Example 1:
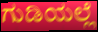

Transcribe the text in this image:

ಗುಡಿಯಲ್ಲೆ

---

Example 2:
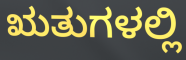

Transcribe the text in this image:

ಋತುಗಳಲ್ಲಿ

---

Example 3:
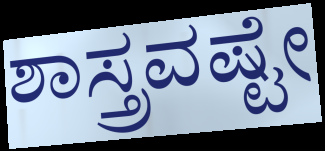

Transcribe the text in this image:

ಶಾಸ್ತ್ರವಷ್ಟೇ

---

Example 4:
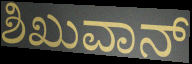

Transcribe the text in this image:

ಶಿಖುವಾನ್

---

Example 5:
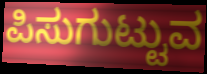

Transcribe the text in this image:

ಪಿಸುಗುಟ್ಟುವ